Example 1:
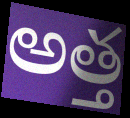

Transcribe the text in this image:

అత్త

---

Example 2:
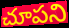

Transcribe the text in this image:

చూపని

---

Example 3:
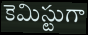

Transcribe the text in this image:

కెమిస్టుగా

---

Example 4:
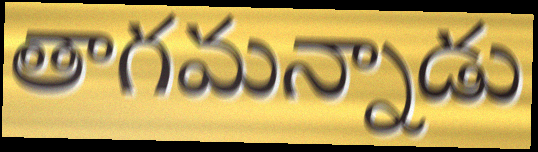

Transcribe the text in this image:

తాగమన్నాడు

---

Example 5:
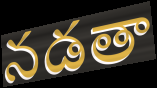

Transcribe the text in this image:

నడతా